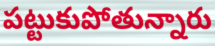
పట్టుకుపోతున్నారు